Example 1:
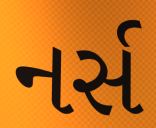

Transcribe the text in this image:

નર્સ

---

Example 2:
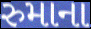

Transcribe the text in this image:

રુમાના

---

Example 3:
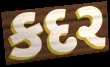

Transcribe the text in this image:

કદર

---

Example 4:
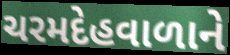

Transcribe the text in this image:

ચરમદેહવાળાને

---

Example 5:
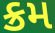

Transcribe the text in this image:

ક્રમ